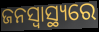
ଜନସ୍ଵାସ୍ଥ୍ୟରେ